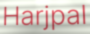
Harjpal